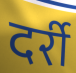
दर्री